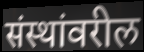
संस्थांवरील